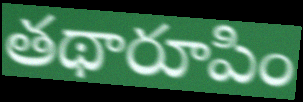
తథారూపిం